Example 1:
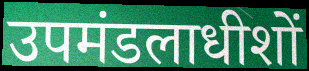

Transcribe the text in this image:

उपमंडलाधीशों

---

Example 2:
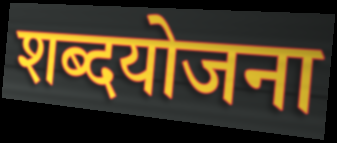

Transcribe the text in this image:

शब्दयोजना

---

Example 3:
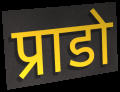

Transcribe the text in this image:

प्राडो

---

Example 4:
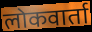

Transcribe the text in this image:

लोकवार्ता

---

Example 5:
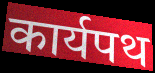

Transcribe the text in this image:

कार्यपथ